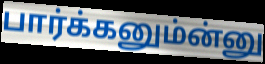
பார்க்கனும்ன்னு